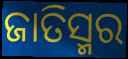
ଜାତିସ୍ମର